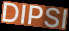
DIPSI